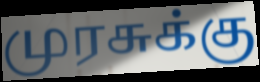
முரசுக்கு